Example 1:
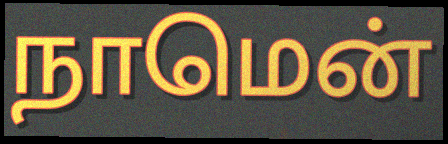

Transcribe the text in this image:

நாமென்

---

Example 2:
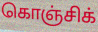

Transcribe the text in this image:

கொஞ்சிக்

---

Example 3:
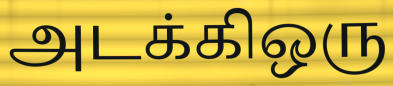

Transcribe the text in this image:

அடக்கிஒரு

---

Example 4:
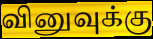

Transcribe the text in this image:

வினுவுக்கு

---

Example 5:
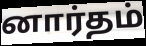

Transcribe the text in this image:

னார்தம்